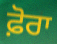
ਫ਼ੋਰਾ